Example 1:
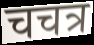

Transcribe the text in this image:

चचत्र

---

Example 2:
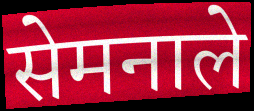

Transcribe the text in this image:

सेमनाले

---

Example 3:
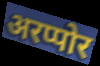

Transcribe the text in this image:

अरप्पोर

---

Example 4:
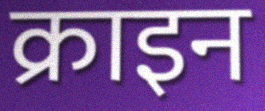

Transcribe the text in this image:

क्राइन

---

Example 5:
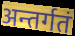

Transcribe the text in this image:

अन्तर्गतं